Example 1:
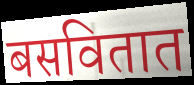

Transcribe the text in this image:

बसवितात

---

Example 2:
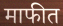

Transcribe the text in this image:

माफीत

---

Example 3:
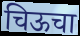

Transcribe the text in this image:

चिऊचा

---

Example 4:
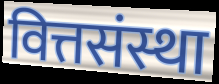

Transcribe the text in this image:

वित्तसंस्था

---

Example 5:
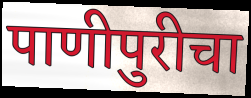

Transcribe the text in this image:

पाणीपुरीचा